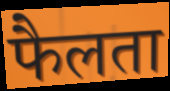
फैलता